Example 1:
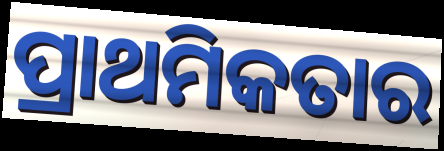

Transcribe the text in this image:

ପ୍ରାଥମିକତାର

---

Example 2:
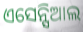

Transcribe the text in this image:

ଏସେନ୍ସିଆଲ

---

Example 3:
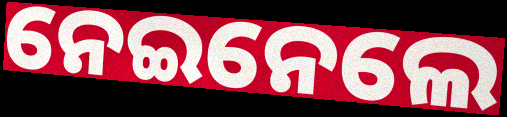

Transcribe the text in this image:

ନେଇନେଲେ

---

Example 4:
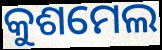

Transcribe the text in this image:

କୁଶମେଲ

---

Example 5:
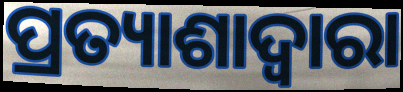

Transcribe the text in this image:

ପ୍ରତ୍ୟାଶାଦ୍ୱାରା